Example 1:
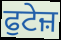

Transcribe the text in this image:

ਫੁਟੇਜ਼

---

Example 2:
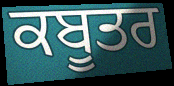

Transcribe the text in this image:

ਕਬੂਤਰ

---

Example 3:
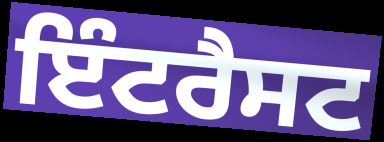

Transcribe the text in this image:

ਇੰਟਰੈਸਟ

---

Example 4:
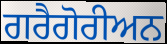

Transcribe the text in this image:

ਗਰੈਗੋਰੀਅਨ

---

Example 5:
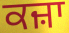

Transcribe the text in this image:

ਕਜ਼ਾ